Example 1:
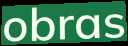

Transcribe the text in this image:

obras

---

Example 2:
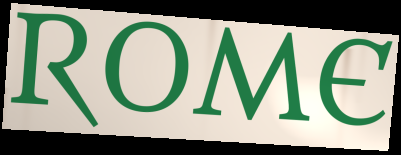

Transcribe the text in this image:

ROME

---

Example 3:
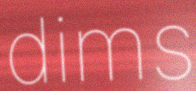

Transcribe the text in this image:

dims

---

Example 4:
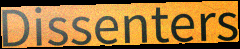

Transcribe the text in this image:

Dissenters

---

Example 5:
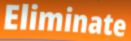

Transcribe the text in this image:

Eliminate